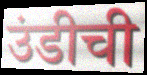
उंडीची